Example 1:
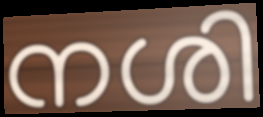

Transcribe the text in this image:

നശി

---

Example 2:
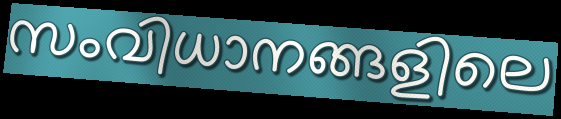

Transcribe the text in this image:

സംവിധാനങ്ങളിലെ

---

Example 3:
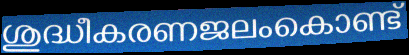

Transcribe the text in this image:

ശുദ്ധീകരണജലംകൊണ്ട്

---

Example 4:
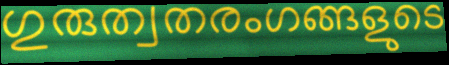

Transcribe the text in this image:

ഗുരുത്വതരംഗങ്ങളുടെ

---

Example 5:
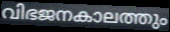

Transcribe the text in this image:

വിഭജനകാലത്തും